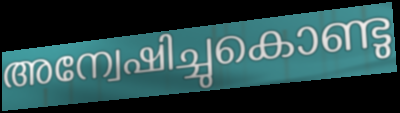
അന്വേഷിച്ചുകൊണ്ടു